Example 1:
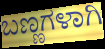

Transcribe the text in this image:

ಬಣ್ಣಗಳಾಗಿ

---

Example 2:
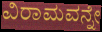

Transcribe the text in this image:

ವಿರಾಮವನ್ನೇ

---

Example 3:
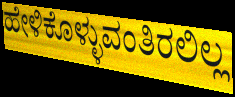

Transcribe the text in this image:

ಹೇಳಿಕೊಳ್ಳುವಂತಿರಲಿಲ್ಲ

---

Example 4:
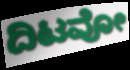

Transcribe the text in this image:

ದಿಟವೋ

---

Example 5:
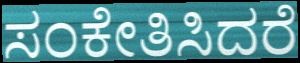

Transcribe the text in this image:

ಸಂಕೇತಿಸಿದರೆ